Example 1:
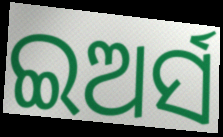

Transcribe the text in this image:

ଇଅର୍ସ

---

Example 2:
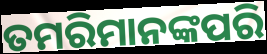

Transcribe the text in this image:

ତମରିମାନଙ୍କପରି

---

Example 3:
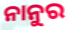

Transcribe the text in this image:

ନାନୁର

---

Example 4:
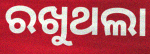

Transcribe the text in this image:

ରଖୁଥଲା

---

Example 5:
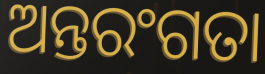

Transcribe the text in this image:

ଅନ୍ତରଂଗତା